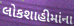
લોકશાહીમાંના